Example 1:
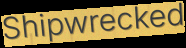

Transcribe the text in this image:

Shipwrecked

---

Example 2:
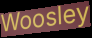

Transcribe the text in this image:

Woosley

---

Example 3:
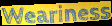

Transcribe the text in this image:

Weariness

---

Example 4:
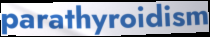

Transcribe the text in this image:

parathyroidism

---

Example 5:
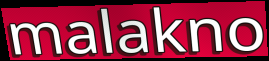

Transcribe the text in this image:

malakno